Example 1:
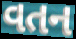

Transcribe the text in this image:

વતન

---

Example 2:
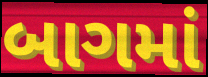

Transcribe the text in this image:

બાગમાં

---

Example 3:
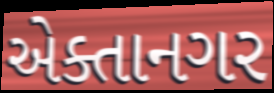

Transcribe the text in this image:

એક્તાનગર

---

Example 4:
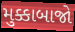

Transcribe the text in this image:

મુક્કાબાજો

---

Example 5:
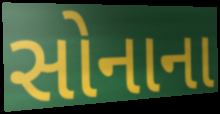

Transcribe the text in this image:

સોનાના